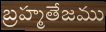
బ్రహ్మతేజము